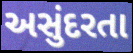
અસુંદરતા